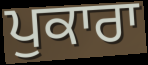
ਪੁਕਾਰਾ